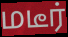
மடீர்